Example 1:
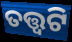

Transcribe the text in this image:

ତତ୍ତ୍ଵଟି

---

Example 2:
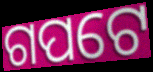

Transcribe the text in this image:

ଗପଟେ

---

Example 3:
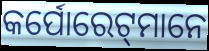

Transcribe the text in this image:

କର୍ପୋରେଟ୍‌ମାନେ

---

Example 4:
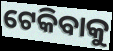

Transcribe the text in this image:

ଟେକିବାକୁ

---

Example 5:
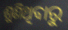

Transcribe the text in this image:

ଶୁଣିଥିବାରୁ